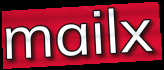
mailx